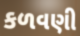
કળવણી